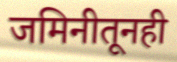
जमिनीतूनही